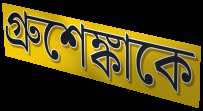
গ্রুশেঙ্কাকে